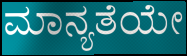
ಮಾನ್ಯತೆಯೇ